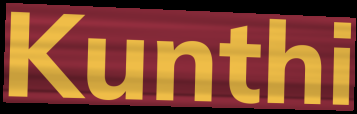
Kunthi